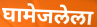
घामेजलेला